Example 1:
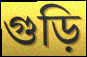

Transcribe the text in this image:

গুড়ি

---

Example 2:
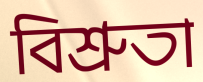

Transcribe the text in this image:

বিশ্রুতা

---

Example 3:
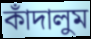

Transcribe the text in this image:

কাঁদালুম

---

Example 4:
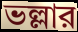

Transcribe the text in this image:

ভল্লার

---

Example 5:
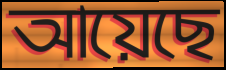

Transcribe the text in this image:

আয়েছে